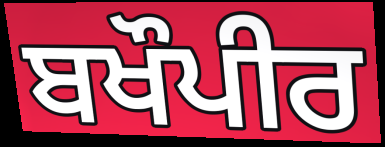
ਬਖੌਪੀਰ